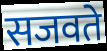
सजवते